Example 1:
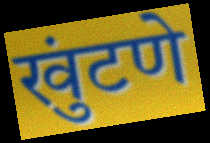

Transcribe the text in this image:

खुंटणे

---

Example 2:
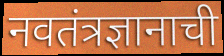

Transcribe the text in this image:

नवतंत्रज्ञानाची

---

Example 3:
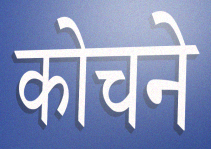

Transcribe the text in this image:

कोचने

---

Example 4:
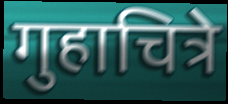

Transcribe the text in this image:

गुहाचित्रे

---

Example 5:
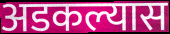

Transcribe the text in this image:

अडकल्यास